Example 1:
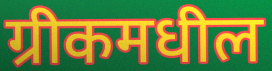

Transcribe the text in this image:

ग्रीकमधील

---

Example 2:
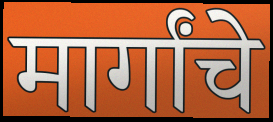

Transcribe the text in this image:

मार्गांचे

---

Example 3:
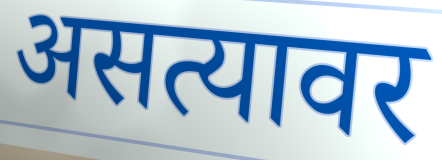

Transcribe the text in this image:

असत्यावर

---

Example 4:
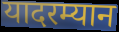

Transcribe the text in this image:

यादरम्यान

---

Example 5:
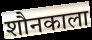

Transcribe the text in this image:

शौनकाला